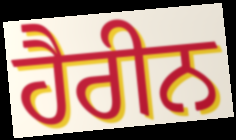
ਹੈਰੀਨ